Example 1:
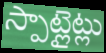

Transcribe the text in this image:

స్పాట్లైట్లు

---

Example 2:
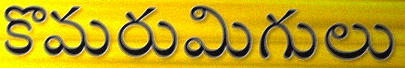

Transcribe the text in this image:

కొమరుమిగులు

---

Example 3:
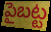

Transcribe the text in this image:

పైబట్ట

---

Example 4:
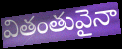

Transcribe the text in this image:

వితంతువైనా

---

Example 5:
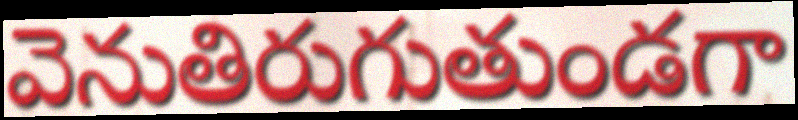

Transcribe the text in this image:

వెనుతిరుగుతుండగా